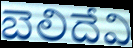
బెలిదేవి